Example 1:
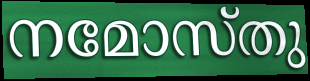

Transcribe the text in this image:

നമോസ്തു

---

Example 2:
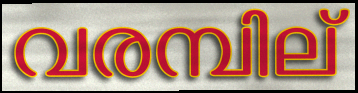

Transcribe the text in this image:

വരമ്പില്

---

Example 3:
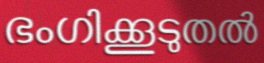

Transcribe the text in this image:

ഭംഗിക്കൂടുതൽ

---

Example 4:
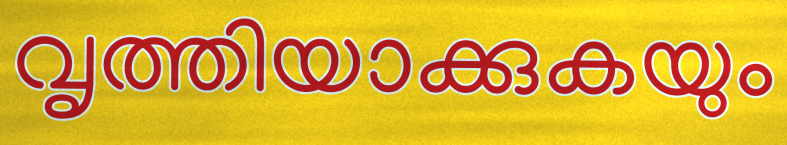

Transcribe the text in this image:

വൃത്തിയാക്കുകയും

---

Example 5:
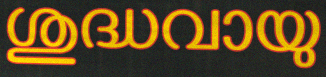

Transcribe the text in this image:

ശുദ്ധവായു